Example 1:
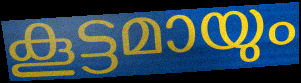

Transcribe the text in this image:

കൂട്ടമായും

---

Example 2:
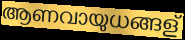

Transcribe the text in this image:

ആണവായുധങ്ങള്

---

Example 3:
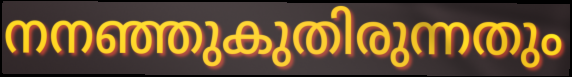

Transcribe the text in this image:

നനഞ്ഞുകുതിരുന്നതും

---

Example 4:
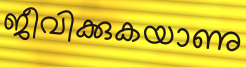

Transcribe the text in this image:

ജീവിക്കുകയാണു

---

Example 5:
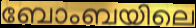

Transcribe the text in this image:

ബോംബയിലെ